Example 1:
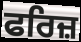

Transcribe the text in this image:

ਫਰਿਜ਼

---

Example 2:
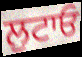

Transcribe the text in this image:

ਲੁਟਾਓ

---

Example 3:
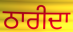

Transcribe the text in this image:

ਠਾਰੀਦਾ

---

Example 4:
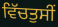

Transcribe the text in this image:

ਵਿੱਚਤੁਸੀਂ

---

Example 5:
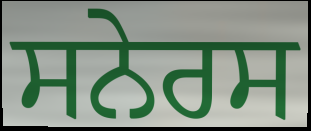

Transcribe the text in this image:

ਸਨੇਰਸ